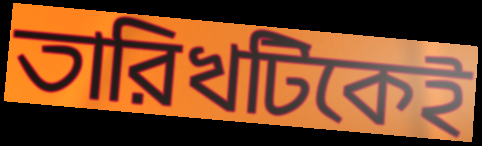
তারিখটিকেই